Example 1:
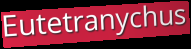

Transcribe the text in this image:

Eutetranychus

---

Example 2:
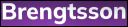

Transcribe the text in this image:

Brengtsson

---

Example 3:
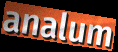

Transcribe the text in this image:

analum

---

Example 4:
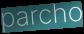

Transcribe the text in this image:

parcho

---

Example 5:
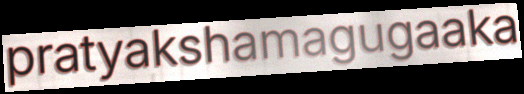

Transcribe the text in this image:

pratyakshamagugaaka